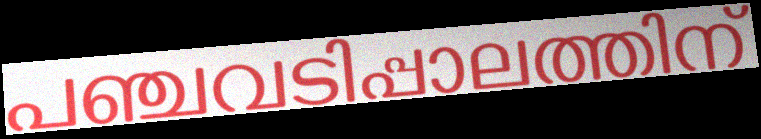
പഞ്ചവടിപ്പാലത്തിന്